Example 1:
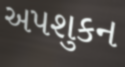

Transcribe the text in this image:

અપશુકન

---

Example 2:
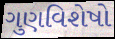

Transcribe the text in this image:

ગુણવિશેષો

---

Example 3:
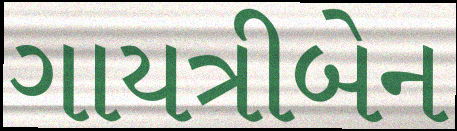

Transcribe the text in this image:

ગાયત્રીબેન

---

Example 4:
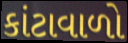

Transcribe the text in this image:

કાંટાવાળો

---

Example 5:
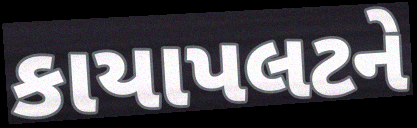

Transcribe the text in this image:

કાયાપલટને